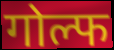
गोल्फ